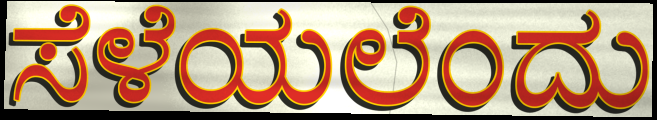
ಸೆಳೆಯಲೆಂದು